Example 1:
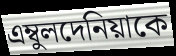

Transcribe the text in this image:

এম্বুলদেনিয়াকে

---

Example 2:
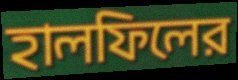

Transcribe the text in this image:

হালফিলের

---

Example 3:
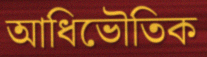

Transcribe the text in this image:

আধিভৌতিক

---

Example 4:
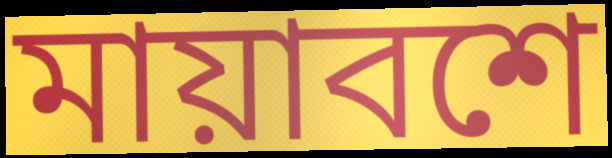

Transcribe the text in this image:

মায়াবশে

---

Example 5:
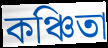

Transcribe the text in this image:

কঞ্চিতা